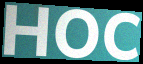
HOC